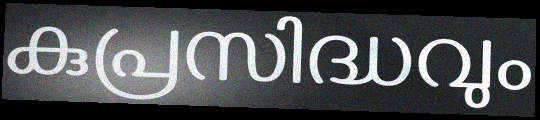
കുപ്രസിദ്ധവും